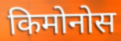
किमोनोस